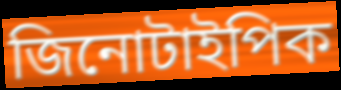
জিনোটাইপিক